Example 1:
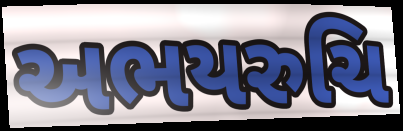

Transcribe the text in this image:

અભયરુચિ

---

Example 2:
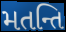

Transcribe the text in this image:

મતન્તિ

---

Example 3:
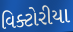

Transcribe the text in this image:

વિક્ટોરીયા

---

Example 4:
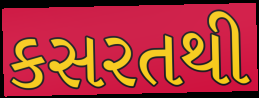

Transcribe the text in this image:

કસરતથી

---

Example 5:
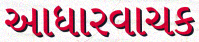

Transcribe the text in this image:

આધારવાચક